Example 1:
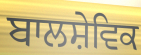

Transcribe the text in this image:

ਬਾਲਸ਼ੇਵਿਕ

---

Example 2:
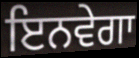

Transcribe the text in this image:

ਇਨਵੇਗਾ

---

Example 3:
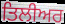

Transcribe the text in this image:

ਤਿਲੀਅਰ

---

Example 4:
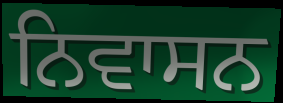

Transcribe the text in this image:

ਨਿਵਾਸਨ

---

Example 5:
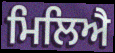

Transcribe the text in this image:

ਮਿਲਿਐ